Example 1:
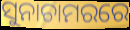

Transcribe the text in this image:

ସୁନାଚାମରରେ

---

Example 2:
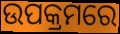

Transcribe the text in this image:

ଉପକ୍ରମରେ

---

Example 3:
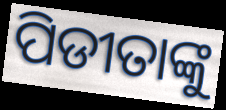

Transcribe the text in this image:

ପିଡୀତାଙ୍କୁ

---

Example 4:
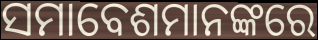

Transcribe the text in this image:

ସମାବେଶମାନଙ୍କରେ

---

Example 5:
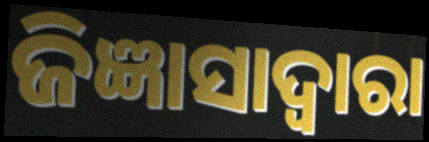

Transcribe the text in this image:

ଜିଜ୍ଞାସାଦ୍ୱାରା